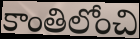
కాంతిలోంచి